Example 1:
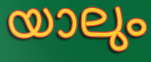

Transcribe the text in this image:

യാലും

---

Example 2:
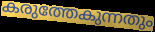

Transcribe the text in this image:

കരുത്തേകുന്നതും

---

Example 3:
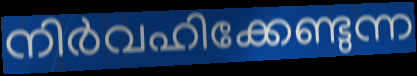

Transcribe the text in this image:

നിർവഹിക്കേണ്ടുന്ന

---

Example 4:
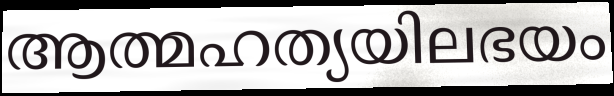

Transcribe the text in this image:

ആത്മഹത്യയിലഭയം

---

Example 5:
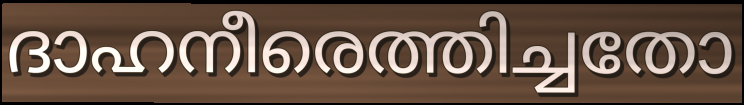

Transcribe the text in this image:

ദാഹനീരെത്തിച്ചതോ